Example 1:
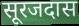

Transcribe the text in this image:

सूरजदास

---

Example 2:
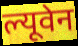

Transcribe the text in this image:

ल्यूवेन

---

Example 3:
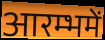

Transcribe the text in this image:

आरम्भमें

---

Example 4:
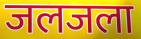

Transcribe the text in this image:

जलजला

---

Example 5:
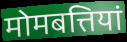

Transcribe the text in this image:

मोमबत्तियां